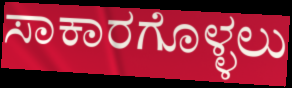
ಸಾಕಾರಗೊಳ್ಳಲು